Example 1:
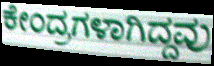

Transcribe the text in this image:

ಕೇಂದ್ರಗಳಾಗಿದ್ದವು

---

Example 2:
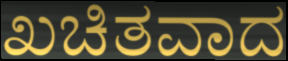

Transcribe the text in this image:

ಖಚಿತವಾದ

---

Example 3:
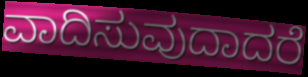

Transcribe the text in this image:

ವಾದಿಸುವುದಾದರೆ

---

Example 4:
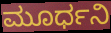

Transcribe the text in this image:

ಮೂರ್ಧನಿ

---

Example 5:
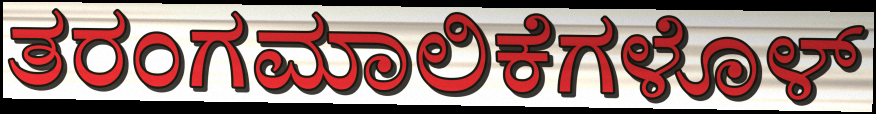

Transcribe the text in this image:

ತರಂಗಮಾಲಿಕೆಗಳೊಳ್